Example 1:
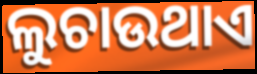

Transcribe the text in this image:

ଲୁଚାଉଥାଏ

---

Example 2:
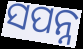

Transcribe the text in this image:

ସପନ୍ନ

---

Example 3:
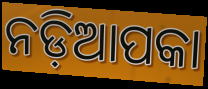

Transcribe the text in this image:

ନଡ଼ିଆପକା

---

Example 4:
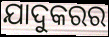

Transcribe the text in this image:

ଯାଦୁକରର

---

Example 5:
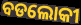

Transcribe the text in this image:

ବଡଲୋକୀ